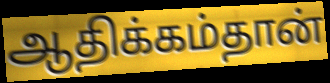
ஆதிக்கம்தான்